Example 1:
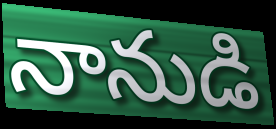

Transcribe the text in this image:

నానుడి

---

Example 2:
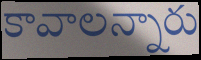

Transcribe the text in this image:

కావాలన్నారు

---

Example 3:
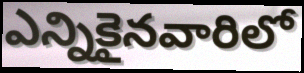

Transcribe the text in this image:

ఎన్నికైనవారిలో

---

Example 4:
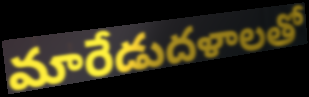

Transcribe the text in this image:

మారేడుదళాలతో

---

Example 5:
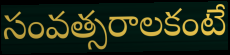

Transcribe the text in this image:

సంవత్సరాలకంటే